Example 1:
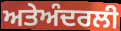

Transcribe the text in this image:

ਅਤੇਅੰਦਰਲੀ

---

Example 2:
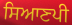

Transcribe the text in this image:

ਸਿਆਣਪੀ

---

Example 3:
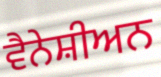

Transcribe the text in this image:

ਵੈਨੇਸ਼ੀਅਨ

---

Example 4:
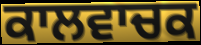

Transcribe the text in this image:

ਕਾਲਵਾਚਕ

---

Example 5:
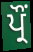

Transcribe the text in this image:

ਪ੍ਰੌਂ